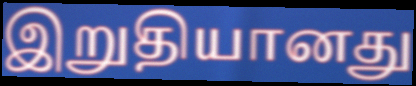
இறுதியானது